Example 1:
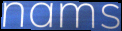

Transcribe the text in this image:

nams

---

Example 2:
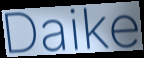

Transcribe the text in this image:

Daike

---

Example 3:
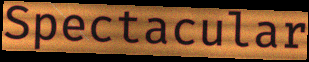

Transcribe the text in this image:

Spectacular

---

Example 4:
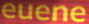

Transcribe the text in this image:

euene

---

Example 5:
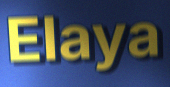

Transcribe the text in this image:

Elaya